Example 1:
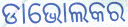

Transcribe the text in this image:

ଡାଭୋଲକର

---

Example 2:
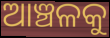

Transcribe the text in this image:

ଆଞ୍ଚଳକୁ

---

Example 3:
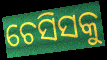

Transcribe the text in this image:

ଚେସିସକୁ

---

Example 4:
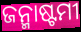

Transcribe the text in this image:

ଜନ୍ମାଷ୍ଟମୀ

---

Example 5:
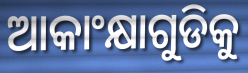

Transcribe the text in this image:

ଆକାଂକ୍ଷାଗୁଡିକୁ